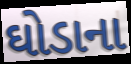
ઘોડાના